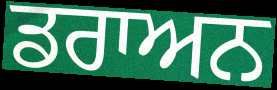
ਡਰਾਅਨ